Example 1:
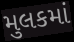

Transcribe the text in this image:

મુલકમાં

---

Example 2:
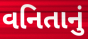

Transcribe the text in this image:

વનિતાનું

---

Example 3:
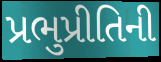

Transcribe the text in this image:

પ્રભુપ્રીતિની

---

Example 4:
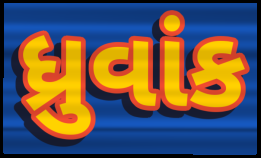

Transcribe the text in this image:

ધ્રુવાંક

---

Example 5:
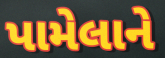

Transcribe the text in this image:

પામેલાને